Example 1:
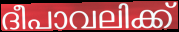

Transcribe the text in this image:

ദീപാവലിക്ക്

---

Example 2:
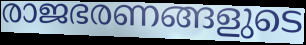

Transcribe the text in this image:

രാജഭരണങ്ങളുടെ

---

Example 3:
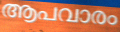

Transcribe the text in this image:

ആപവാരം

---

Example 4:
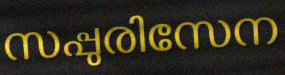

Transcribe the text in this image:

സപ്പുരിസേന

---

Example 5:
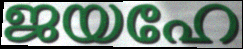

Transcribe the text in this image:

ജയഹേ